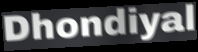
Dhondiyal